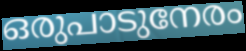
ഒരുപാടുനേരം